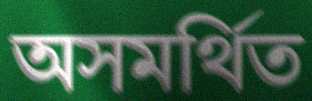
অসমর্থিত